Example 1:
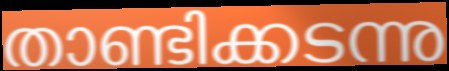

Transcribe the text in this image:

താണ്ടിക്കടന്നു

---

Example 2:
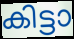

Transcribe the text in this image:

കിട്ടാ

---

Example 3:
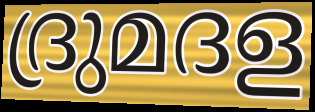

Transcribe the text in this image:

ദ്രുമദള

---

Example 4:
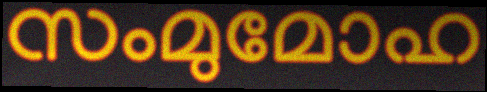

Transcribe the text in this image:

സംമുമോഹ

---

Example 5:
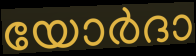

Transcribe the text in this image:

യോർദാ